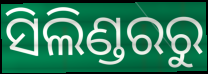
ସିଲିଣ୍ଡରରୁ